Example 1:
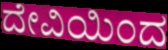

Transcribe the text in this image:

ದೇವಿಯಿಂದ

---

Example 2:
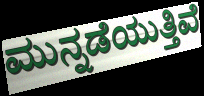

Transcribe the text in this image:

ಮುನ್ನಡೆಯುತ್ತಿವೆ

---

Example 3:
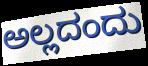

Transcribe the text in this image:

ಅಲ್ಲದಂದು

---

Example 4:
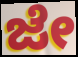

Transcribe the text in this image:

ಜೇ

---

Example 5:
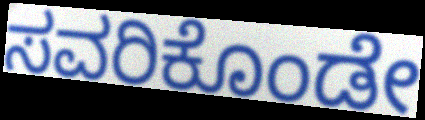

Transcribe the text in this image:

ಸವರಿಕೊಂಡೇ